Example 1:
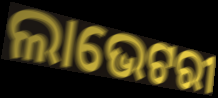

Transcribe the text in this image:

ଲାଭେଟରୀ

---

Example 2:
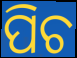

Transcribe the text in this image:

ପିଚ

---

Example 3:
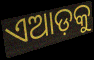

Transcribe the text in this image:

ଏଆଡ଼କୁ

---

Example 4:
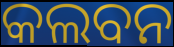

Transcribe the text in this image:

କଲବନ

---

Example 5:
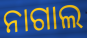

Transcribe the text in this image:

ନାଗାଲ